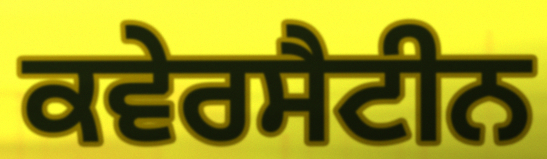
ਕਵੇਰਸੈਟੀਨ